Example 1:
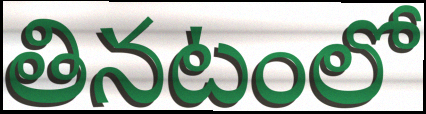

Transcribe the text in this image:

తినటంలో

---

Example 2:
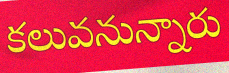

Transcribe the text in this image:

కలువనున్నారు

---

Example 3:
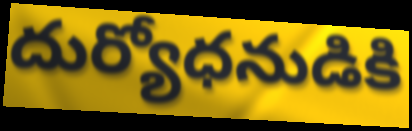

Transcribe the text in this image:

దుర్యోధనుడికి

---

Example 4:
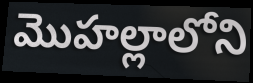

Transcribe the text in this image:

మొహల్లాలోని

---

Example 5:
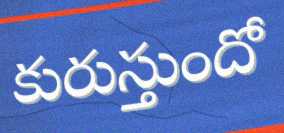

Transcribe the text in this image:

కురుస్తుందో